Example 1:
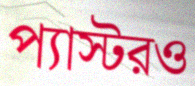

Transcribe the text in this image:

প্যাস্টরও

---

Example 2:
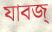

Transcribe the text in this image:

যাবজ্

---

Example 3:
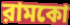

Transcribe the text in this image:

রামকো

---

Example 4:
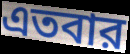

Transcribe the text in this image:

এতবার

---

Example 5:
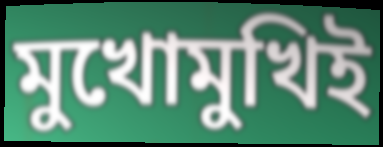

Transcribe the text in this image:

মুখোমুখিই